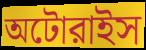
অটোরাইস